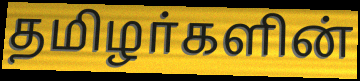
தமிழர்களின்